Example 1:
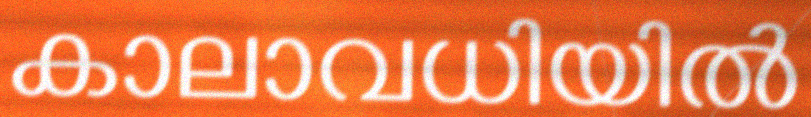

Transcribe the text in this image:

കാലാവധിയിൽ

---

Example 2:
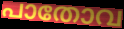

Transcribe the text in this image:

പാതോവ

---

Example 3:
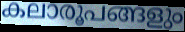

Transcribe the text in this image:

കലാരൂപങ്ങളും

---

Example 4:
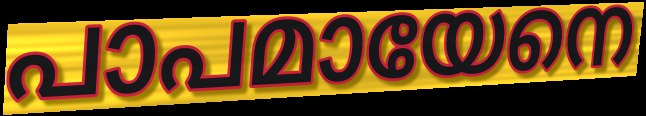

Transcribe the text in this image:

പാപമായേനെ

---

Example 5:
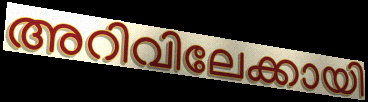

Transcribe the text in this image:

അറിവിലേക്കായി